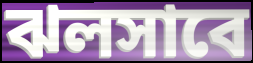
ঝলসাবে